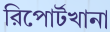
রিপোর্টখানা